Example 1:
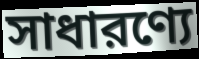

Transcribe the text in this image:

সাধারণ্যে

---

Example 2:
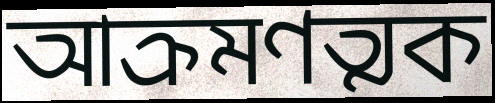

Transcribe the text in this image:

আক্রমণত্মক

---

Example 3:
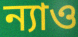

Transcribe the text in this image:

ন্যাও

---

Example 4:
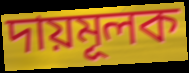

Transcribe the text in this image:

দায়মূলক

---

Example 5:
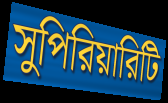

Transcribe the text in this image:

সুপিরিয়ারিটি